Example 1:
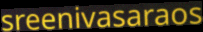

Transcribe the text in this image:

sreenivasaraos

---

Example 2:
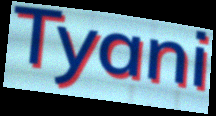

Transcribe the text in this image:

Tyani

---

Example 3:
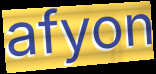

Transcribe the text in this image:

afyon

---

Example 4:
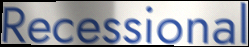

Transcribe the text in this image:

Recessional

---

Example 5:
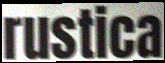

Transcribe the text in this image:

rustica